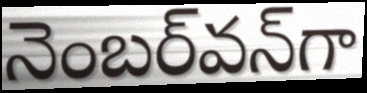
నెంబర్‌వన్‌గా